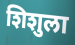
शिशुला